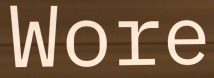
Wore